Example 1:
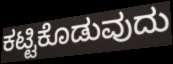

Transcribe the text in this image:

ಕಟ್ಟಿಕೊಡುವುದು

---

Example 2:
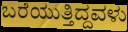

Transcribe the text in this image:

ಬರೆಯುತ್ತಿದ್ದವಳು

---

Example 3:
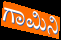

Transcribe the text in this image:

ಗಾಮಿನಿ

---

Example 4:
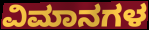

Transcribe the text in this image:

ವಿಮಾನಗಳ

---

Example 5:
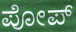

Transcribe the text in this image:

ಪೋಪ್